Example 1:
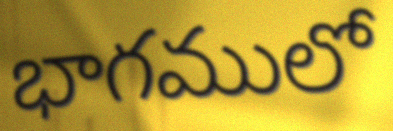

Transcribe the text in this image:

భాగములో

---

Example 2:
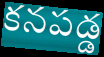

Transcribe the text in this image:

కనపడ్డ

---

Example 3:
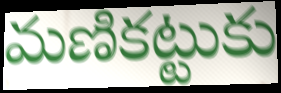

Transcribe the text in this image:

మణికట్టుకు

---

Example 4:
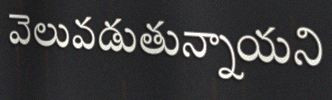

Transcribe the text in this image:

వెలువడుతున్నాయని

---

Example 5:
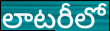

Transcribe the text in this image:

లాటరీలో